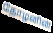
தோழனின்